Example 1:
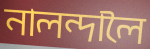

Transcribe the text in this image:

নালন্দালৈ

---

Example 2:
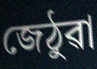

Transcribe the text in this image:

জেঠুৱা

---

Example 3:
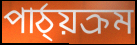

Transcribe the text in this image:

পাঠ্য়ক্ৰম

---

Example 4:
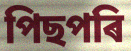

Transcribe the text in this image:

পিছপৰি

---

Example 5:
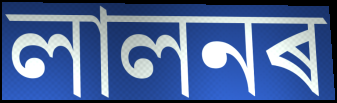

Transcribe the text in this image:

লালনৰ